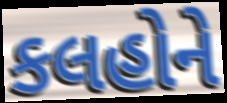
કલહોને